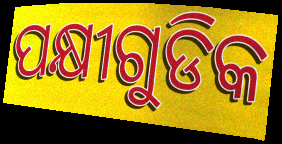
ପକ୍ଷୀଗୁଡିକ